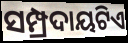
ସମ୍ପ୍ରଦାୟଟିଏ